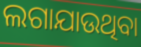
ଲଗାଯାଉଥିବା